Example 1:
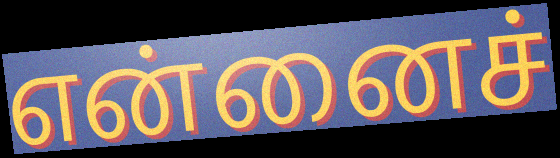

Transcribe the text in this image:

என்னைச்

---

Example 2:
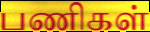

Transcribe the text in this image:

பணிகள்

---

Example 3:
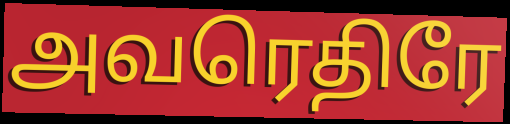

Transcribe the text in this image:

அவரெதிரே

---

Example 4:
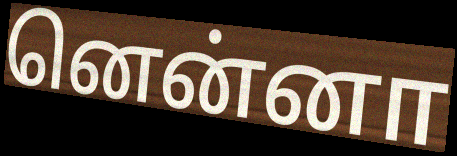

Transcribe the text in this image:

னென்னா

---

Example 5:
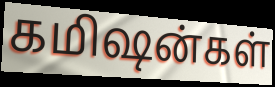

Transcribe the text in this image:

கமிஷன்கள்